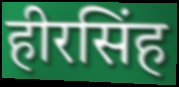
हीरसिंह